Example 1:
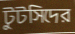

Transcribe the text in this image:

টুটসিদের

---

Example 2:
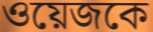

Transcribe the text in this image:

ওয়েজকে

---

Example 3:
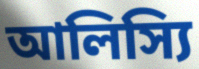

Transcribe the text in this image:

আলিস্যি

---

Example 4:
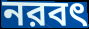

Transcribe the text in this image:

নরবৎ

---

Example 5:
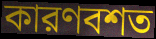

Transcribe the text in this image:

কারণবশত